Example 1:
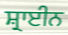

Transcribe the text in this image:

ਸ਼੍ਰਾਈਨ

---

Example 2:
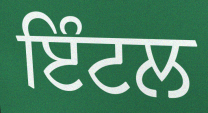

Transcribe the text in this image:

ਇੰਟਲ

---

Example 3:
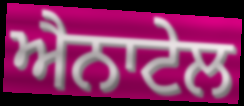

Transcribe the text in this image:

ਐਨਾਟੇਲ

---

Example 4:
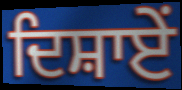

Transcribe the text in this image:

ਦਿਸ਼ਾਏਂ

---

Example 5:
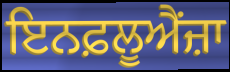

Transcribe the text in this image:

ਇਨਫ਼ਲੂਐਂਜ਼ਾ